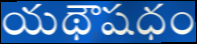
యథౌషధం